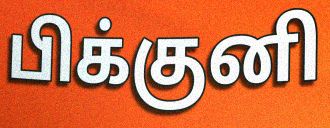
பிக்குனி